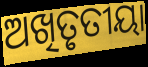
ଅଖିତୃତୀୟା